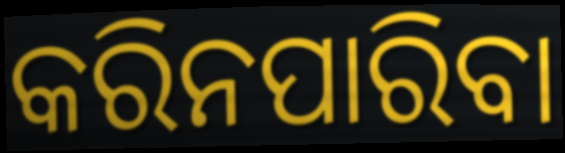
କରିନପାରିବା